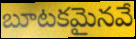
బూటకమైనవే